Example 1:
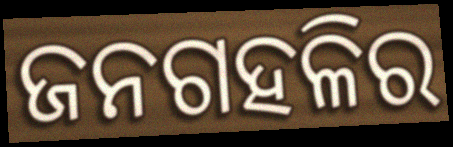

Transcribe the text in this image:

ଜନଗହଳିର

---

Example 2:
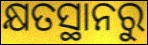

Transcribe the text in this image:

କ୍ଷତସ୍ଥାନରୁ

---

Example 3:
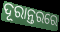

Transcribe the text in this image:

ଦୂରାନ୍ତରରେ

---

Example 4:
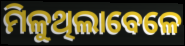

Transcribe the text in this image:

ମିଳୁଥିଲାବେଳେ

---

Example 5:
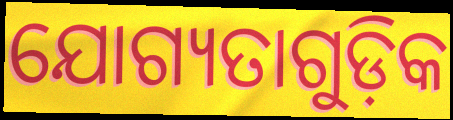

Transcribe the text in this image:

ଯୋଗ୍ୟତାଗୁଡ଼ିକ